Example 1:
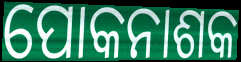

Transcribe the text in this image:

ପୋକନାଶକ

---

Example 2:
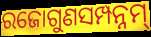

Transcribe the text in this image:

ରଜୋଗୁଣସମ୍ପନ୍ନମ୍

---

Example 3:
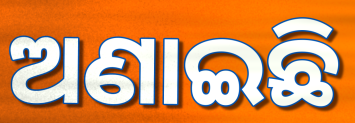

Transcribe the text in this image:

ଅଣାଇଛି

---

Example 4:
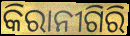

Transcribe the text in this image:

କିରାନୀଗିରି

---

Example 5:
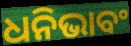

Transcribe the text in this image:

ଧନିଭାବଂ